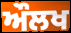
ਔਲਖ